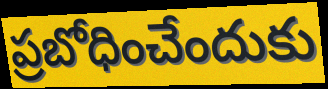
ప్రబోధించేందుకు